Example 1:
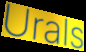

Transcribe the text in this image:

Urals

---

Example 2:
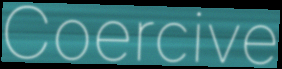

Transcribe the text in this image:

Coercive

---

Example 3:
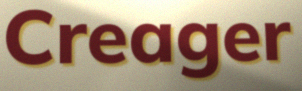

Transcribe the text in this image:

Creager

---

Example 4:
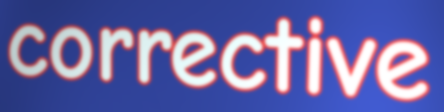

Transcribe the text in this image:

corrective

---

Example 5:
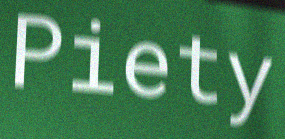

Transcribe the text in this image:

Piety